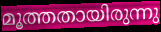
മൂത്തതായിരുന്നു